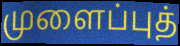
முளைப்புத்